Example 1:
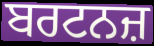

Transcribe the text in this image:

ਬਰਟਨਜ਼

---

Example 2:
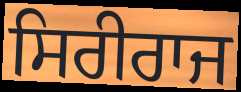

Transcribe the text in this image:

ਸਿਰੀਰਾਜ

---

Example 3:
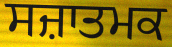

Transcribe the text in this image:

ਸਜ਼ਾਤਮਕ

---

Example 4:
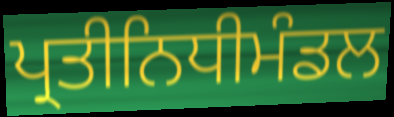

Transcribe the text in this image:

ਪ੍ਰਤੀਨਿਧੀਮੰਡਲ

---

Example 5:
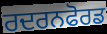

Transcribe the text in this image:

ਰਦਰਨਫੋਰਡ